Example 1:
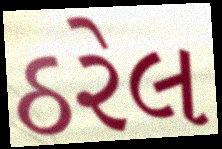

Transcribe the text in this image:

ઠરેલ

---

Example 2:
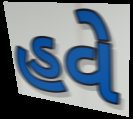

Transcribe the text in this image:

હવે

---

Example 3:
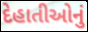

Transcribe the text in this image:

દેહાતીઓનું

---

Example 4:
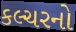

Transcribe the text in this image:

કલ્ચરનો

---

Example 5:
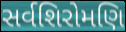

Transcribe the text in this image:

સર્વશિરોમણિ